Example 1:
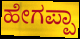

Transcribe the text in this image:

ಹೇಗಪ್ಪಾ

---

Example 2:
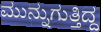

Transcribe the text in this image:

ಮುನ್ನುಗುತ್ತಿದ್ದ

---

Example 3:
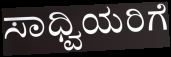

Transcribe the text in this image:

ಸಾಧ್ವಿಯರಿಗೆ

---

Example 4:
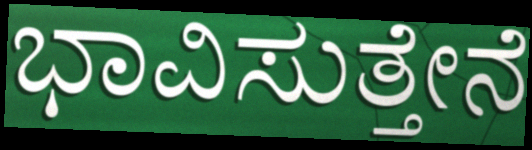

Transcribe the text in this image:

ಭಾವಿಸುತ್ತೇನೆ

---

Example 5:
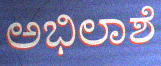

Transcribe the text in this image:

ಅಭಿಲಾಶೆ